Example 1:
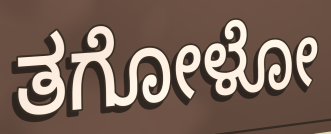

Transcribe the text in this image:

ತಗೋಳೋ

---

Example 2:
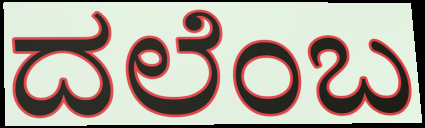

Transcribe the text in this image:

ದಲೆಂಬ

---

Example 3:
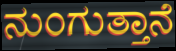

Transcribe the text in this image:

ನುಂಗುತ್ತಾನೆ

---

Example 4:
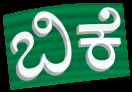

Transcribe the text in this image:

ಬಿಕೆ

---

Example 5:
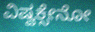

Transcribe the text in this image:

ವಿಷ್ವಕ್ಸೇನೋ